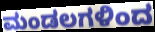
ಮಂಡಲಗಳಿಂದ